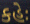
કહેઃ